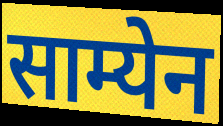
साम्येन